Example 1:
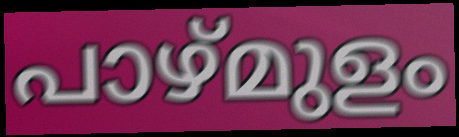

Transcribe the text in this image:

പാഴ്മുളം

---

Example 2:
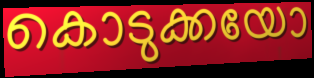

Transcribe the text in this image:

കൊടുക്കയോ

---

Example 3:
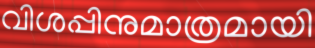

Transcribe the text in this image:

വിശപ്പിനുമാത്രമായി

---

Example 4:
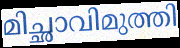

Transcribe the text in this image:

മിച്ഛാവിമുത്തി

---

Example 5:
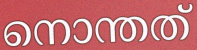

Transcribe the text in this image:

നൊന്തത്